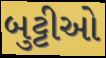
બુટ્ટીઓ